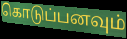
கொடுப்பனவும்